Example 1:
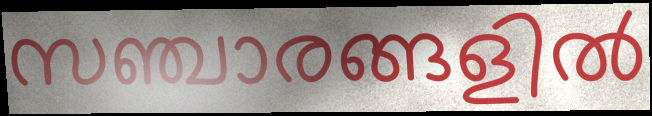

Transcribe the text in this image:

സഞ്ചാരങ്ങളിൽ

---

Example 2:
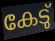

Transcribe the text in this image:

കേടു്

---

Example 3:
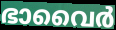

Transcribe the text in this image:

ഭാവൈർ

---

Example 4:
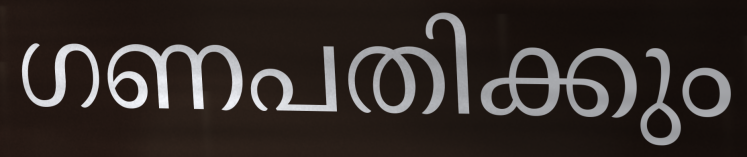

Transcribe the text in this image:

ഗണപതിക്കും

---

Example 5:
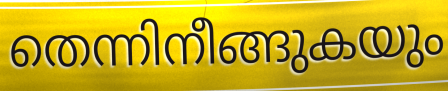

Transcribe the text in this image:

തെന്നിനീങ്ങുകയും